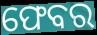
ଫେବର